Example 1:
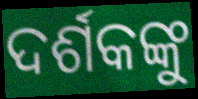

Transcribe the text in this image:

ଦର୍ଶକଙ୍କୁ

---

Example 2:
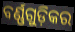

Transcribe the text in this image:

ବର୍ଣ୍ଣଗୁଡ଼ିକର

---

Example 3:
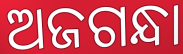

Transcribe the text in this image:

ଅଜଗନ୍ଧା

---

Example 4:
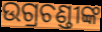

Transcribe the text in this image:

ଉଗ୍ରଚଣ୍ଡୀଙ୍କ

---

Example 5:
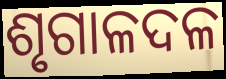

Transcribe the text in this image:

ଶୃଗାଳଦଳ